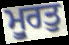
ਮੂਰਤੁ